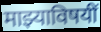
माझ्याविषयीं